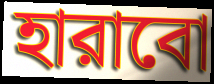
হারাবো